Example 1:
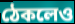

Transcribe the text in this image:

ঠেকলেও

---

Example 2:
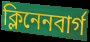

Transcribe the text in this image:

ক্লিনেনবার্গ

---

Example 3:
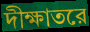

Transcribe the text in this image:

দীক্ষাতরে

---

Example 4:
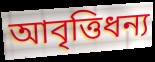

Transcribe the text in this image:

আবৃত্তিধন্য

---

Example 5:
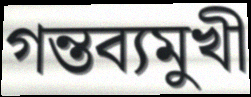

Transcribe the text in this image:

গন্তব্যমুখী